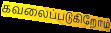
கவலைப்படுகிறோம்